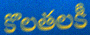
కొలతలకీ